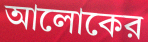
আলোকের